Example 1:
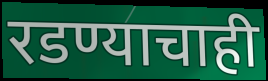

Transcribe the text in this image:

रडण्याचाही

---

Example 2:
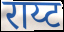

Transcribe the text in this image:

राय्ट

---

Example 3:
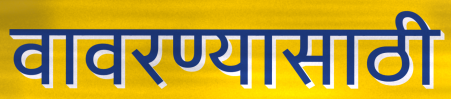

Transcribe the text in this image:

वावरण्यासाठी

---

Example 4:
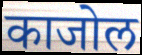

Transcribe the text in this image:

काजोल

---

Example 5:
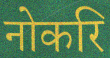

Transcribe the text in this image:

नोकरि